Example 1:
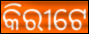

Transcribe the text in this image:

କିରୀଟେ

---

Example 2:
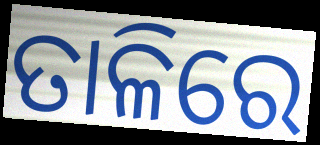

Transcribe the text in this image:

ତାଳିରେ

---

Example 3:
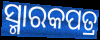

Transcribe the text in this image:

ସ୍ମାରକପତ୍ର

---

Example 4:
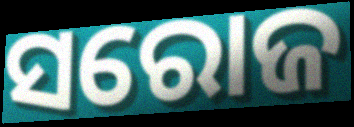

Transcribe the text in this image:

ସରୋଜ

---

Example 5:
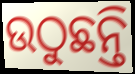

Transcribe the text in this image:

ଉଠୁଛନ୍ତି